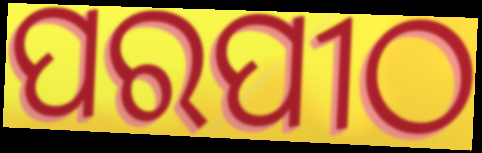
ପରପୀଠ